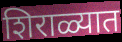
शिराळ्यात